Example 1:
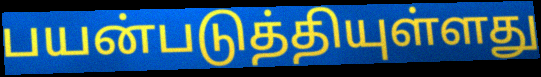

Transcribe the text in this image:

பயன்படுத்தியுள்ளது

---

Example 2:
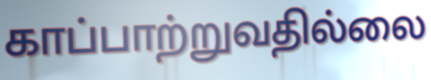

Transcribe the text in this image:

காப்பாற்றுவதில்லை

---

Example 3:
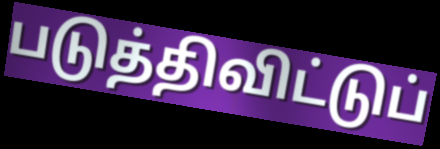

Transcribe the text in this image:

படுத்திவிட்டுப்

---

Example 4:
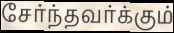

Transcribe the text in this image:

சேர்ந்தவர்க்கும்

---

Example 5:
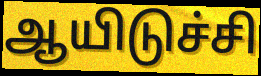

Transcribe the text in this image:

ஆயிடுச்சி